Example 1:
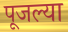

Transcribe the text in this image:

पूजल्या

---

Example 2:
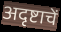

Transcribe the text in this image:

अदृष्टाचें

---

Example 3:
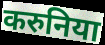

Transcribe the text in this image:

करुनिया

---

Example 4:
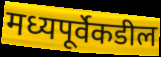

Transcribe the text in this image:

मध्यपूर्वेकडील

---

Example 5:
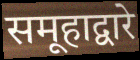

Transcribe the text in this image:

समूहाद्वारे